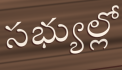
సభ్యుల్లో